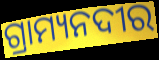
ଗ୍ରାମ୍ୟନଦୀର